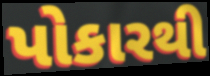
પોકારથી